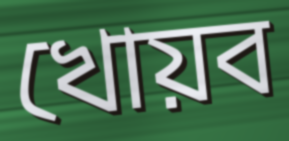
খোয়ব